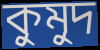
কুমুদ